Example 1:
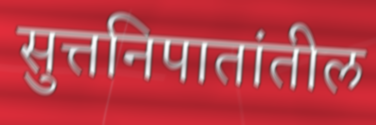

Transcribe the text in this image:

सुत्तनिपातांतील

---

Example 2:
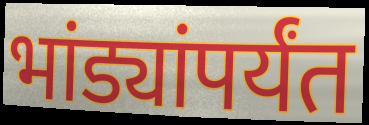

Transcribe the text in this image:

भांड्यांपर्यंत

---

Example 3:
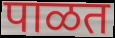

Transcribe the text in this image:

पाळत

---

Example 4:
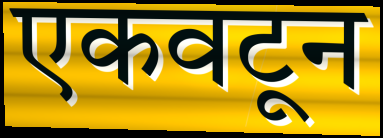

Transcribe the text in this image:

एकवटून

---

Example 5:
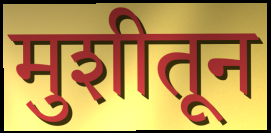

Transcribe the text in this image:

मुशीतून